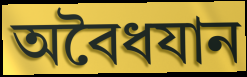
অবৈধযান